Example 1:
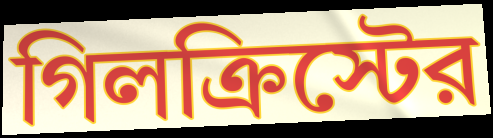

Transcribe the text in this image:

গিলক্রিস্টের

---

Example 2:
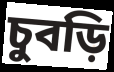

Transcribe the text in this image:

চুবড়ি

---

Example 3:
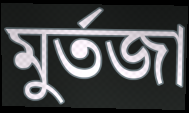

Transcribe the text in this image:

মুর্তজা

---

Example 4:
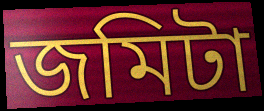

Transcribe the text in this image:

জমিটা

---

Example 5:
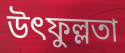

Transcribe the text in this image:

উৎফুল্লতা